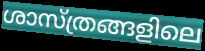
ശാസ്ത്രങ്ങളിലെ